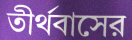
তীর্থবাসের